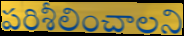
పరిశీలించాలని